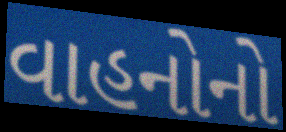
વાહનોનો